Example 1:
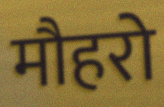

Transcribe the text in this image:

मौहरो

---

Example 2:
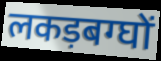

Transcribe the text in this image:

लकड़बग्घों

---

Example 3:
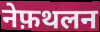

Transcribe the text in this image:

नेफ़थलन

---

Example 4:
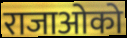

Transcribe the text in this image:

राजाओको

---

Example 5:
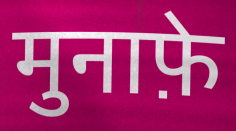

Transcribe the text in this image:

मुनाफ़े